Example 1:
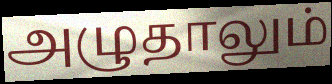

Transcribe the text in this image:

அழுதாலும்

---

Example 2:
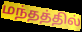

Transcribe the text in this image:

மந்தத்தில்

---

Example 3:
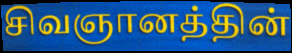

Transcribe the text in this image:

சிவஞானத்தின்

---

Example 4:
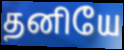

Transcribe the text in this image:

தனியே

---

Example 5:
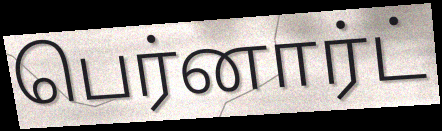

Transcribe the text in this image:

பெர்னார்ட்